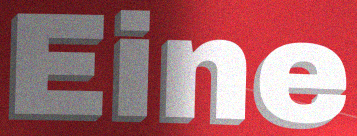
Eine